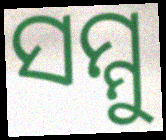
ସମ୍ମୁ